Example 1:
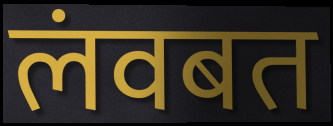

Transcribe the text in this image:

लंवबत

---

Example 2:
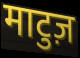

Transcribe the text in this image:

माटुज़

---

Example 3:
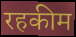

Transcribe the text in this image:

रहकीम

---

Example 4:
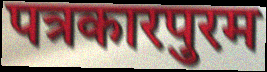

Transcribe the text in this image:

पत्रकारपुरम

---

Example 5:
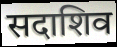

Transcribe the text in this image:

सदाशिव